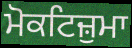
ਮੋਕਟਿਜ਼ੁਮਾ